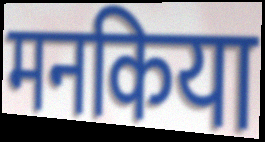
मनकिया